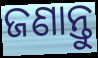
ଜଣାନ୍ତୁ